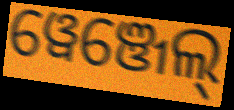
ୱେଞ୍ଜେଲ୍